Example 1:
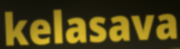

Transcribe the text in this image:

kelasava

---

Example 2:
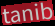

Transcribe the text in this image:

tanib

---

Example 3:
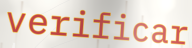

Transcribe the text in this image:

verificar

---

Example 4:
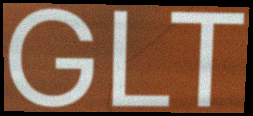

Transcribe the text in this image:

GLT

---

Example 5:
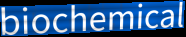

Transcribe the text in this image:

biochemical